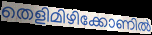
തെളിമിഴിക്കോണിൽ